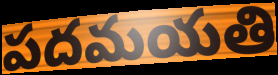
పదమయతి